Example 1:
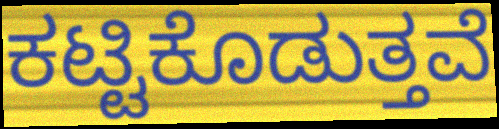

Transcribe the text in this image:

ಕಟ್ಟಿಕೊಡುತ್ತವೆ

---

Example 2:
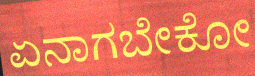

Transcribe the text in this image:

ಏನಾಗಬೇಕೋ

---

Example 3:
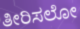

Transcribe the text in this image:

ತೀರಿಸಲೋ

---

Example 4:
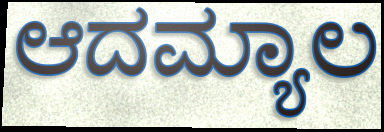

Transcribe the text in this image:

ಆದಮ್ಯಾಲ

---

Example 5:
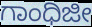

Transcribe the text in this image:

ಗಾಂಧಿಜೀ